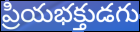
ప్రియభక్తుడగు